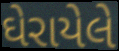
ઘેરાયેલે